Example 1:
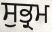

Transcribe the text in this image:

ਸੁਭ੍ਰਮ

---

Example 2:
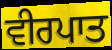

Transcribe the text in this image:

ਵੀਰਪਾਤ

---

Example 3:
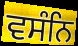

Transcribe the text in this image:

ਵਸੰਨਿ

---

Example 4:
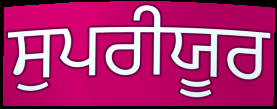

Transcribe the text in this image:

ਸੁਪਰੀਯੂਰ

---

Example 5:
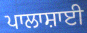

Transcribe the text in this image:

ਪਾਲਾਸ਼ਾਈ